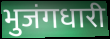
भुजंगधारी